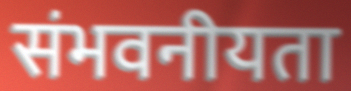
संभवनीयता